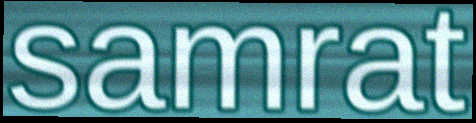
samrat